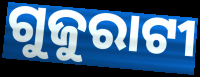
ଗୁଜୁରାଟୀ